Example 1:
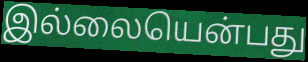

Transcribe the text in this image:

இல்லையென்பது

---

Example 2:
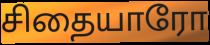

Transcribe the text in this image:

சிதையாரோ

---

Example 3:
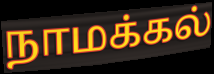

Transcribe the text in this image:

நாமக்கல்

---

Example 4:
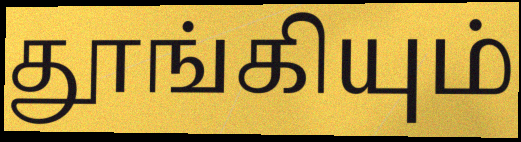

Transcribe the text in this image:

தூங்கியும்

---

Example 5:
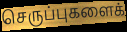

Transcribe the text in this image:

செருப்புகளைக்